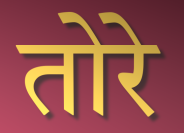
तोरे